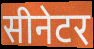
सीनेटर